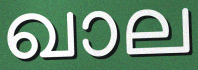
ഖാല